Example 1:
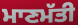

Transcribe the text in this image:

ਮਾਣਮੱਤੀ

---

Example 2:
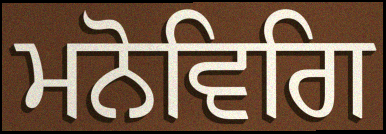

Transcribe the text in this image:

ਮਨੋਵਿਗਿ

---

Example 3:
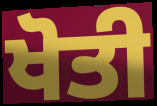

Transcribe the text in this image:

ਖੋਤੀ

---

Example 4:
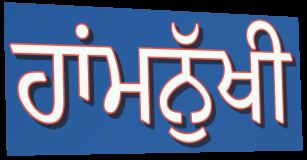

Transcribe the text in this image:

ਹਾਂਮਨੁੱਖੀ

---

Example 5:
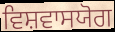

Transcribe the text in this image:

ਵਿਸ਼ਵਾਸਯੋਗ